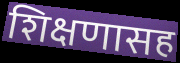
शिक्षणासह